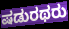
ಷಡುರಥರು